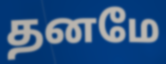
தனமே